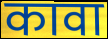
कावा